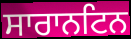
ਸਾਰਾਨਟਿਨ